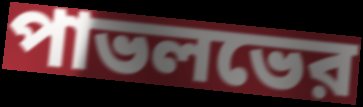
পাভলভের